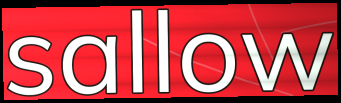
sallow